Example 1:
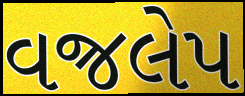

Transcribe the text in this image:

વજ્રલેપ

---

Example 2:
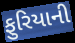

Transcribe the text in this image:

ફુરિયાની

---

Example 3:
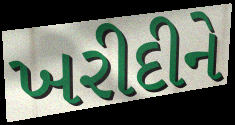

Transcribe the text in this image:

ખરીદીને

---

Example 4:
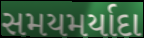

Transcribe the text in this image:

સમયમર્યાદા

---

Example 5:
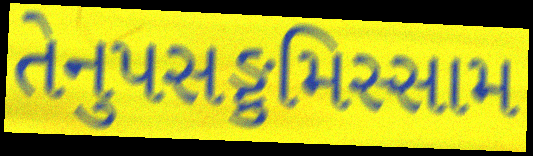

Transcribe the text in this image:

તેનુપસઙ્કમિસ્સામ